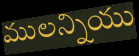
ములన్నియు